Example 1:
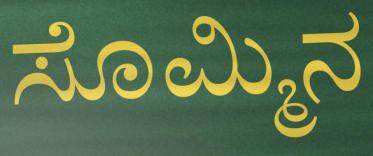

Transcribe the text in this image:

ಸೊಮ್ಮಿನ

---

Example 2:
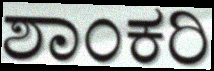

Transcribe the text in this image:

ಶಾಂಕರಿ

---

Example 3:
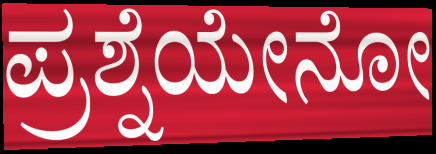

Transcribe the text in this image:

ಪ್ರಶ್ನೆಯೇನೋ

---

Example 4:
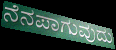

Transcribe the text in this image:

ನೆನಪಾಗುವುದು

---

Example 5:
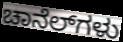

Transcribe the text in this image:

ಚಾನೆಲ್‌ಗಳು